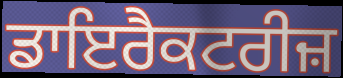
ਡਾਇਰੈਕਟਰੀਜ਼